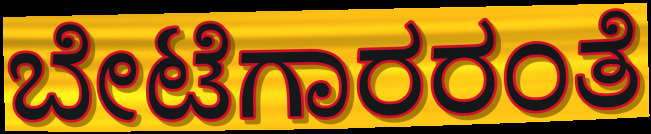
ಬೇಟೆಗಾರರಂತೆ